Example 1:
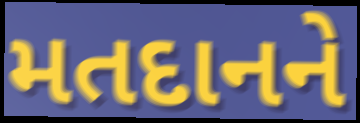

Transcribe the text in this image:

મતદાનને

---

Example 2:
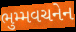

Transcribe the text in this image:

ભુમ્મવચનેન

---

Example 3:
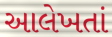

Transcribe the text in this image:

આલેખતાં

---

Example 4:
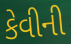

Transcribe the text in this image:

કેવીની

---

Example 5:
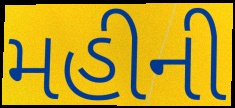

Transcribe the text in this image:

મહીની